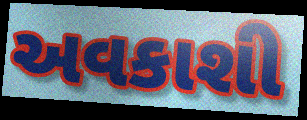
અવકાશી